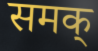
समक्